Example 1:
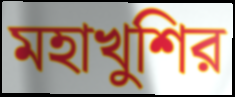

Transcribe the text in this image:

মহাখুশির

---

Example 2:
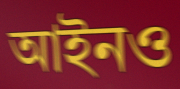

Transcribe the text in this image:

আইনও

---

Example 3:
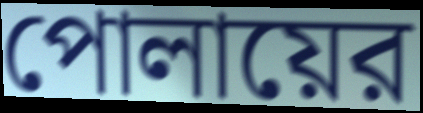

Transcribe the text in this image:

পোলায়ের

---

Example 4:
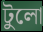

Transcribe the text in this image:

টুলো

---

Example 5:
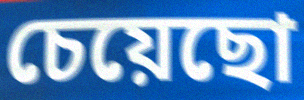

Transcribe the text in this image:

চেয়েছো